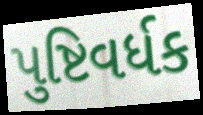
પુષ્ટિવર્ધક